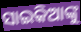
ସାଇକିଆଙ୍କୁ